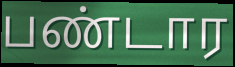
பண்டார